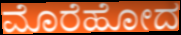
ಮೊರೆಹೋದ